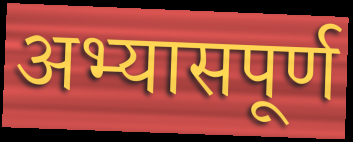
अभ्यासपूर्ण